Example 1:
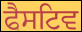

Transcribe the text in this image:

ਫੈਸਟਿਵ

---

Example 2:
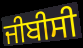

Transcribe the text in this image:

ਜੀਬੀਸੀ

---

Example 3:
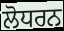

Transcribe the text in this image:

ਲੋਧਰਨ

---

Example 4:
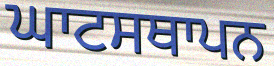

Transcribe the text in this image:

ਘਾਟਸਥਾਪਨ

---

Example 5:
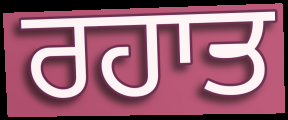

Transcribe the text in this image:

ਰਹਾਤ